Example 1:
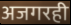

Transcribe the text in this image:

अजगरही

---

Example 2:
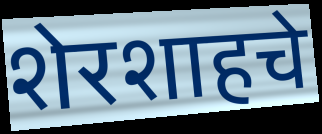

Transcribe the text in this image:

शेरशाहचे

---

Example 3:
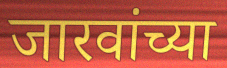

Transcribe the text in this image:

जारवांच्या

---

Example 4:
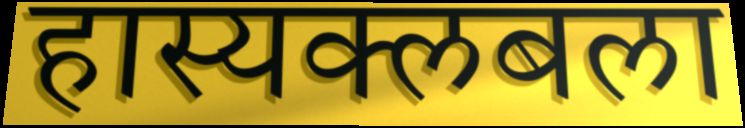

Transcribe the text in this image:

हास्यक्लबला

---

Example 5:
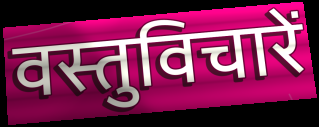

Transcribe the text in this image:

वस्तुविचारें